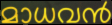
മാധവൻ